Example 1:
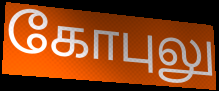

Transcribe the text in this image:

கோபுலு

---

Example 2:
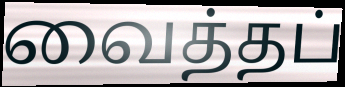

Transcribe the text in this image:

வைத்தப்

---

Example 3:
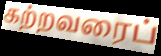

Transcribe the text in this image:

கற்றவரைப்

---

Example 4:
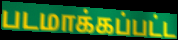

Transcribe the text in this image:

படமாக்கப்பட்ட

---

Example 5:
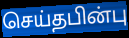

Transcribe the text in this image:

செய்தபின்பு